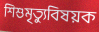
শিশুমৃত্যুবিষয়ক